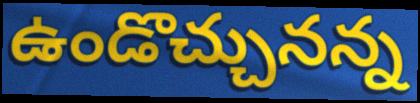
ఉండొచ్చునన్న